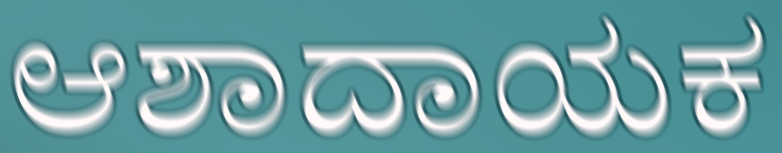
ಆಶಾದಾಯಕ